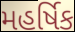
મહર્ષિક